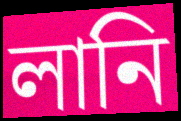
লানি